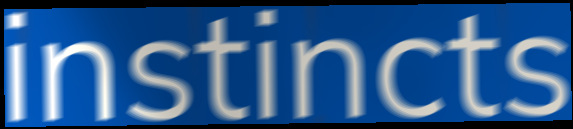
instincts